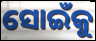
ସୋଇଁକୁ